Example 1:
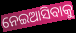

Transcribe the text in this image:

ନେଇଆସିବାକୁ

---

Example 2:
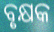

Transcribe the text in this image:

ବୃକ୍ଷକ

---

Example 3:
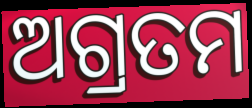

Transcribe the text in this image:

ଅଗ୍ରତମ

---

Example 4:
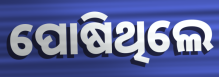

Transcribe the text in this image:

ପୋଷିଥିଲେ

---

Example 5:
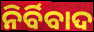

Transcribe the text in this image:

ନିର୍ବିବାଦ